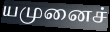
யமுனைச்